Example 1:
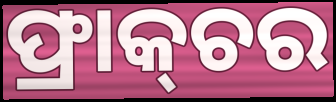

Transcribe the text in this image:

ଫ୍ରାକ୍‌ଚର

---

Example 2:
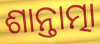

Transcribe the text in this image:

ଶାନ୍ତାତ୍ମା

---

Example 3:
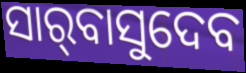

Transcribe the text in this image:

ସାର୍‌ବାସୁଦେବ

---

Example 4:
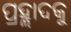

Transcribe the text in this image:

ପ୍ରହ୍ଲାଦକୁ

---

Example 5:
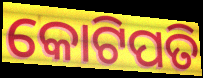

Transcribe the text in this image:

କୋଟିପତି